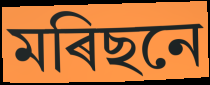
মৰিছনে